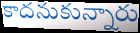
కాదనుకున్నారు